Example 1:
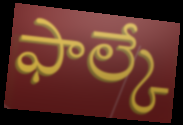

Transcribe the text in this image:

ఫాల్కే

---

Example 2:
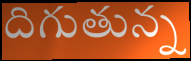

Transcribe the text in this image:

దిగుతున్న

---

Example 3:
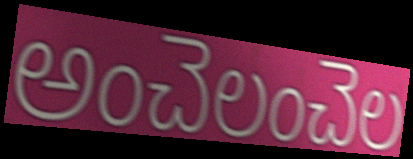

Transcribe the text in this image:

అంచెలంచెల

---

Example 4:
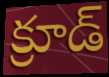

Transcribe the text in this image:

క్రూడ్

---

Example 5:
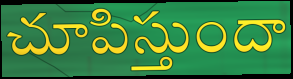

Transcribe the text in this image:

చూపిస్తుందా